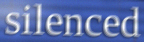
silenced